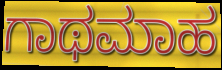
ಗಾಥಮಾಹ